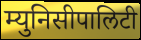
म्युनिसीपालिटी